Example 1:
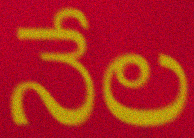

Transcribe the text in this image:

నేల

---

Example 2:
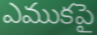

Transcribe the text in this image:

ఎముకపై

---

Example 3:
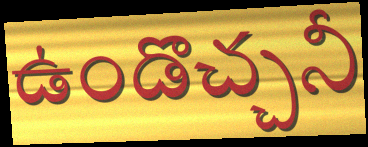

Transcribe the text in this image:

ఉండొచ్చనీ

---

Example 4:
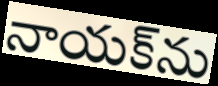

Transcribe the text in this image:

నాయక్‌ను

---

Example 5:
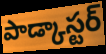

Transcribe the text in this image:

పాడ్కాస్టర్